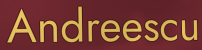
Andreescu